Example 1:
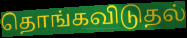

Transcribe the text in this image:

தொங்கவிடுதல்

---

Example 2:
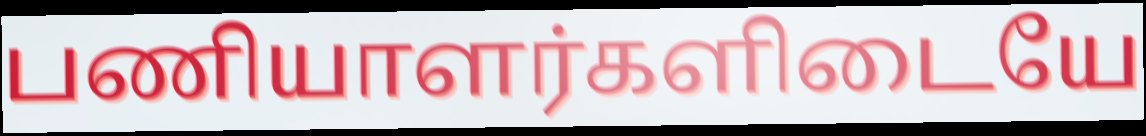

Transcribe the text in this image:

பணியாளர்களிடையே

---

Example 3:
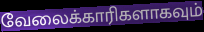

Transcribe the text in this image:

வேலைக்காரிகளாகவும்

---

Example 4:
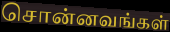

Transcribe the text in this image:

சொன்னவங்கள்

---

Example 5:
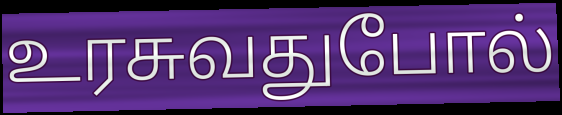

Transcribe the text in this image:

உரசுவதுபோல்